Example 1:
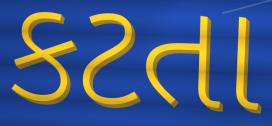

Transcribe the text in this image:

કટતા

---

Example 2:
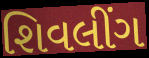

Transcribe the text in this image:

શિવલીંગ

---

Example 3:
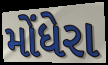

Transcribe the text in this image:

મોંધેરા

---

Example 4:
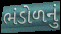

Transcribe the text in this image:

ભંડોળનું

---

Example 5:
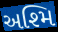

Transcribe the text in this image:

અશ્મિ